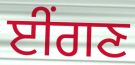
ਈਂਗਣ